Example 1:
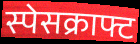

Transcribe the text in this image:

स्पेसक्राफ्ट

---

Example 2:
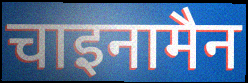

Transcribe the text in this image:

चाइनामैन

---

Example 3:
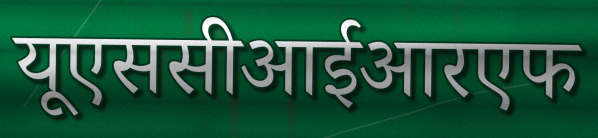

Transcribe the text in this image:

यूएससीआईआरएफ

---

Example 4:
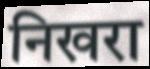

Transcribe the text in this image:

निखरा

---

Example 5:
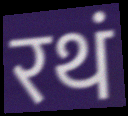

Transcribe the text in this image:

रथं